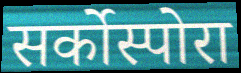
सर्कोस्पोरा